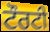
ਟੌਰਟੀ